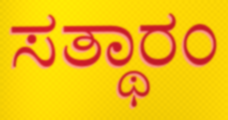
ಸತ್ಥಾರಂ